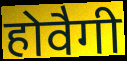
होवैगी